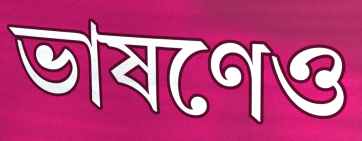
ভাষণেও